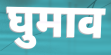
घुमाव